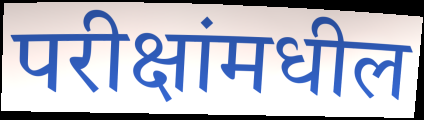
परीक्षांमधील